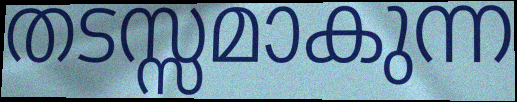
തടസ്സമാകുന്ന